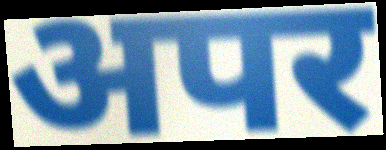
अपर